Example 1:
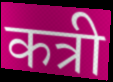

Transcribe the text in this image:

कत्री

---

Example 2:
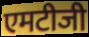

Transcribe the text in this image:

एमटीजी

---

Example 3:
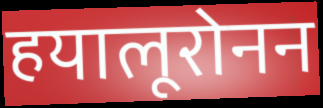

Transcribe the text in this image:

हयालूरोनन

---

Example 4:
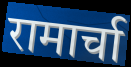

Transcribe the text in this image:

रामार्चा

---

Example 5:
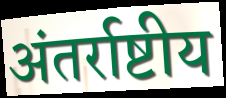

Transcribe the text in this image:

अंतर्राष्टीय